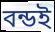
বন্ডই